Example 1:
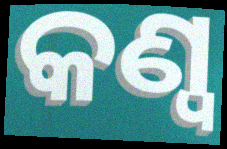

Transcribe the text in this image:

କଣ୍ୱ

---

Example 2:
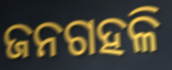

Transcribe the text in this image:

ଜନଗହଳି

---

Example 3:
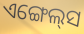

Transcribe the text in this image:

ଏଙ୍ଗେଲ୍‌ସ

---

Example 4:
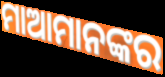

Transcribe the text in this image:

ମାଆମାନଙ୍କର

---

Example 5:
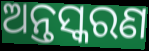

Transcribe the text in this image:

ଅନ୍ତସ୍କରଣ